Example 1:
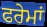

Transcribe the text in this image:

ਫਰੇਮਾਂ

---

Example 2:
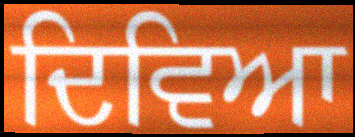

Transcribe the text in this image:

ਦਿਵਿਆ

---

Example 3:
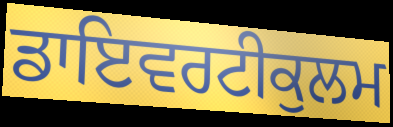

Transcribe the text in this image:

ਡਾਇਵਰਟੀਕੁਲਮ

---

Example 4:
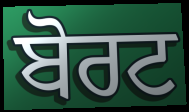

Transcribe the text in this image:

ਬੋਰਟ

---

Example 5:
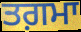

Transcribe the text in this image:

ਤਗ਼ਮਾ